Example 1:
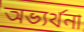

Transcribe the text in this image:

অভ্যৰ্থনা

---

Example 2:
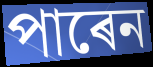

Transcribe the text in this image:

পাৰেন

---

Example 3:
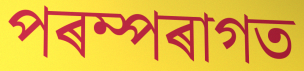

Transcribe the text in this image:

পৰম্পৰাগত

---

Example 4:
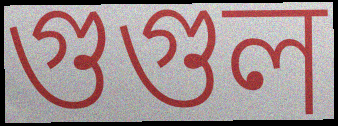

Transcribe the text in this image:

গুগুল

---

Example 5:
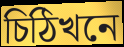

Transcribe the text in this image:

চিঠিখনে